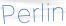
Perlin